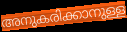
അനുകരിക്കാനുള്ള